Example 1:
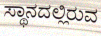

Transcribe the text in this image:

ಸ್ಥಾನದಲ್ಲಿರುವ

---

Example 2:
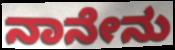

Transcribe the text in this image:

ನಾನೇನು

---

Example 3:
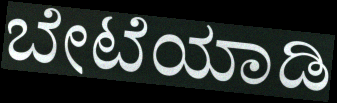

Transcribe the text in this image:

ಬೇಟೆಯಾಡಿ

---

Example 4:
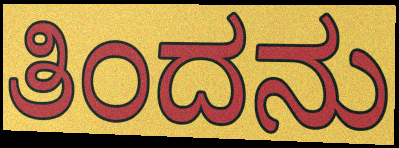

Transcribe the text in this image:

ತಿಂದನು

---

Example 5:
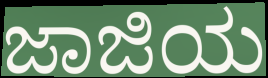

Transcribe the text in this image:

ಜಾಜಿಯ